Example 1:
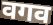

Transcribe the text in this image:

वगव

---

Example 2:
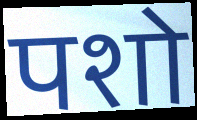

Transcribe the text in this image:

पशो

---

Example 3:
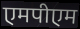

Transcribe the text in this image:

एमपीएम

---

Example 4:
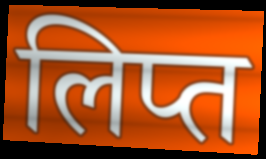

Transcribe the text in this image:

लिप्त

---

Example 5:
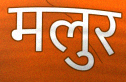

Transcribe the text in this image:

मलुर